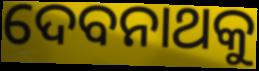
ଦେବନାଥକୁ